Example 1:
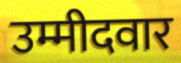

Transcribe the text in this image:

उम्‍मीदवार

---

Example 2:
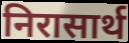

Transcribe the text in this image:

निरासार्थ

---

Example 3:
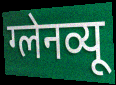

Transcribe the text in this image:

ग्लेनव्यू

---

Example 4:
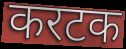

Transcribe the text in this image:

करटक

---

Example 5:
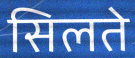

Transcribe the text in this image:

सिलते